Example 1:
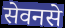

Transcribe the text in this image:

सेवनसे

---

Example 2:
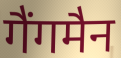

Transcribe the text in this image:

गैंगमैन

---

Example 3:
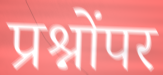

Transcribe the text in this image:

प्रश्नोंपर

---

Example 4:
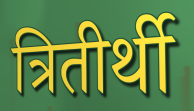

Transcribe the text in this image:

त्रितीर्थी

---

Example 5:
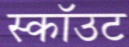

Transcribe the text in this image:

स्कॉउट